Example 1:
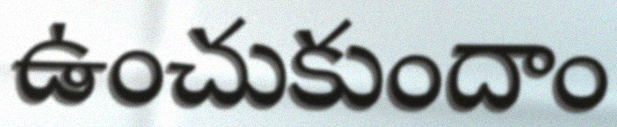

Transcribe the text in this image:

ఉంచుకుందాం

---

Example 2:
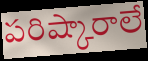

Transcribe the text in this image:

పరిష్కారాలే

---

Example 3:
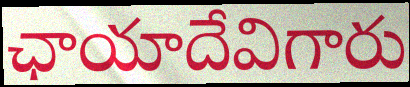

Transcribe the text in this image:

ఛాయాదేవిగారు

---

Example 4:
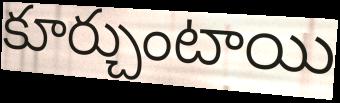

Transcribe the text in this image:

కూర్చుంటాయి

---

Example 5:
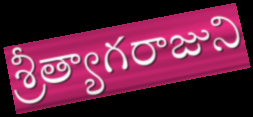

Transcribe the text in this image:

శ్రీత్యాగరాజుని